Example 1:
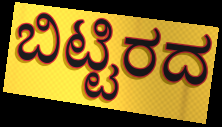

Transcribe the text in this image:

ಬಿಟ್ಟಿರದ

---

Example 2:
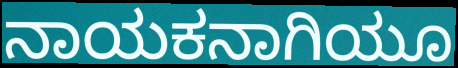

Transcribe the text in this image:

ನಾಯಕನಾಗಿಯೂ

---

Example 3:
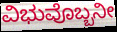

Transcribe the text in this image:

ವಿಭುವೊಬ್ಬನೀ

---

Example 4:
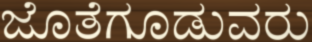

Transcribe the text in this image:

ಜೊತೆಗೂಡುವರು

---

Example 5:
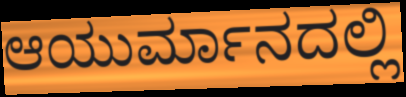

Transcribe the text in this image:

ಆಯುರ್ಮಾನದಲ್ಲಿ